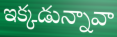
ఇక్కడున్నావా